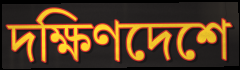
দক্ষিণদেশে